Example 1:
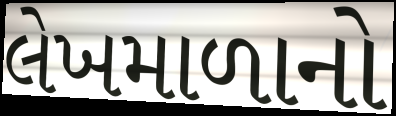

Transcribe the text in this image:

લેખમાળાનો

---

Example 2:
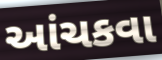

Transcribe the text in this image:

આંચકવા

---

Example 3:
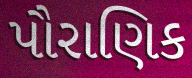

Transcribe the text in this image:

પૌરાણિક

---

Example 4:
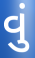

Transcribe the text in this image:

વું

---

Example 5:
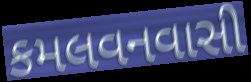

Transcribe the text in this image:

કમલવનવાસી